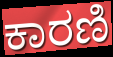
ಕಾರಣಿ